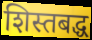
शिस्तबद्ध